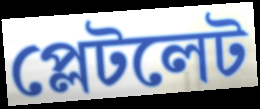
প্লেটলেট